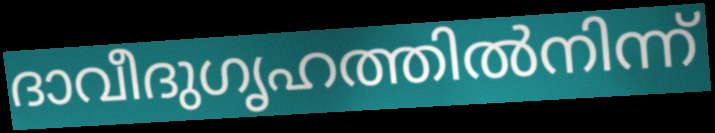
ദാവീദുഗൃഹത്തിൽനിന്ന്